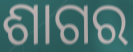
ଶାଗର